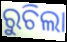
ରୁଚିଲା